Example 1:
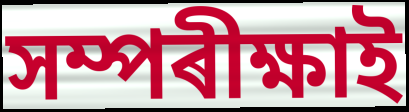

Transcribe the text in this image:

সম্পৰীক্ষাই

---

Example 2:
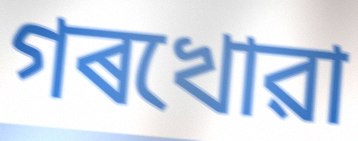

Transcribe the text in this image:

গৰখোৱা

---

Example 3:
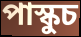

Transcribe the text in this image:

পাস্কুচ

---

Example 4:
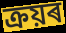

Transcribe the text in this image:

ক্ৰয়ৰ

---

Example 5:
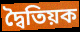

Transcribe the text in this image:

দ্বৈতিয়ক